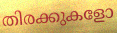
തിരക്കുകളോ